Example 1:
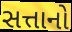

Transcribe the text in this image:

સત્તાનો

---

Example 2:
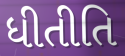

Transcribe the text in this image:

ધીતીતિ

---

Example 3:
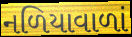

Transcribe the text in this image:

નળિયાવાળાં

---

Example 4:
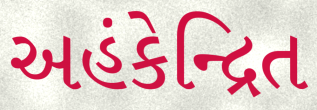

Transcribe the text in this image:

અહંકેન્દ્રિત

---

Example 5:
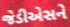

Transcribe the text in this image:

જેડીએસને